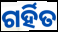
ଗର୍ହିତ